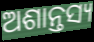
ଅଶାନ୍ତସ୍ୟ